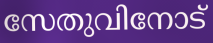
സേതുവിനോട്